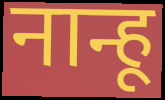
नान्हू